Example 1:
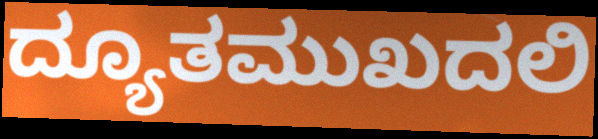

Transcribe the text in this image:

ದ್ಯೂತಮುಖದಲಿ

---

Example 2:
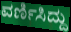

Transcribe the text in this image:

ವರ್ಣಿಸಿದ್ದು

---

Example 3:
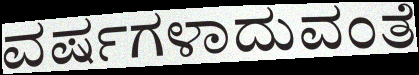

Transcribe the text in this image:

ವರ್ಷಗಳಾದುವಂತೆ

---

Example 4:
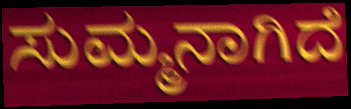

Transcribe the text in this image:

ಸುಮ್ಮನಾಗಿದೆ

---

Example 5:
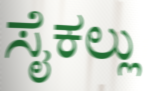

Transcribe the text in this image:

ಸೈಕಲ್ಲು